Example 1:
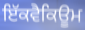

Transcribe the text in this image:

ਇੱਕਵੈਕਿਊਮ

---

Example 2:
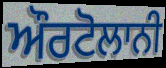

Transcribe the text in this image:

ਔਰਟੋਲਾਨੀ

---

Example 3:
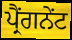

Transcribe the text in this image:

ਪ੍ਰੈਂਗਨੇਂਟ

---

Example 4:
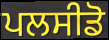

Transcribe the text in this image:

ਪਲਸੀਡੋ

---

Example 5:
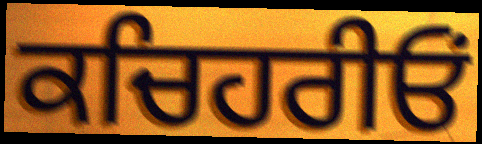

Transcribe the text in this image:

ਕਚਿਹਰੀਓਂ